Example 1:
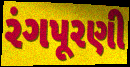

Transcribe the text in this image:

રંગપૂરણી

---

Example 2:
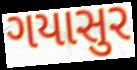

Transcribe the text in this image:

ગયાસુર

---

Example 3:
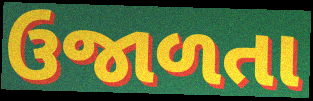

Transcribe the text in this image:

ઉજાળતા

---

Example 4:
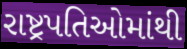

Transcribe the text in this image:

રાષ્ટ્રપતિઓમાંથી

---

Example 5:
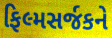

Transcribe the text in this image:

ફિલ્મસર્જકને